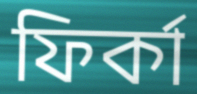
ফির্কা